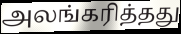
அலங்கரித்தது